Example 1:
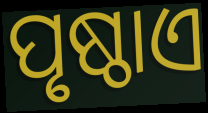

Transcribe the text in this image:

ପୃଷ୍ଠାଏ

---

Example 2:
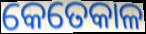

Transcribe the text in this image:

କେତେକାଳ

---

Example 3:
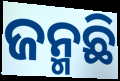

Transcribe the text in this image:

ଜନ୍ମଛି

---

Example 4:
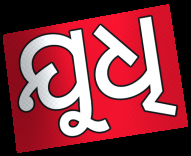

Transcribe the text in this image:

ଯୁଧି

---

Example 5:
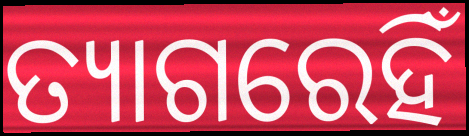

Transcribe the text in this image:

ତ୍ୟାଗରେହିଁ